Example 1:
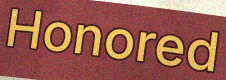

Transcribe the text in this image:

Honored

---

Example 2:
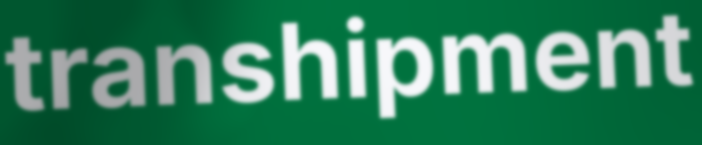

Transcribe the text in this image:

transhipment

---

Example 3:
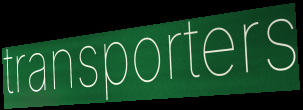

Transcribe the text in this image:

transporters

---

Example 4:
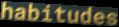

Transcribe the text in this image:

habitudes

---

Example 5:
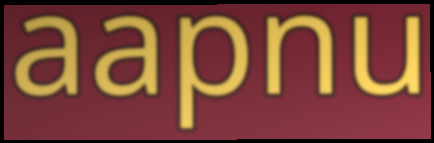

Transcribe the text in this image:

aapnu